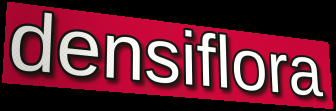
densiflora